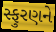
સ્ફુરણને